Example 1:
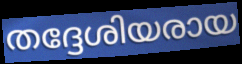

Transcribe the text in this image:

തദ്ദേശിയരായ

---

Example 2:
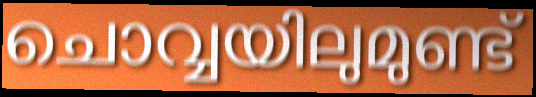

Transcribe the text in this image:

ചൊവ്വയിലുമുണ്ട്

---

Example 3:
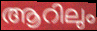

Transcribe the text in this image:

ആറിലും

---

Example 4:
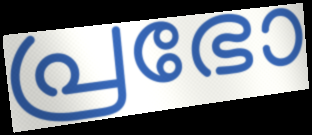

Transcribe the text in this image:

പ്രഭോ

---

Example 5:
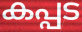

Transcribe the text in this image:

കപ്പട